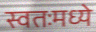
स्वतःमध्ये